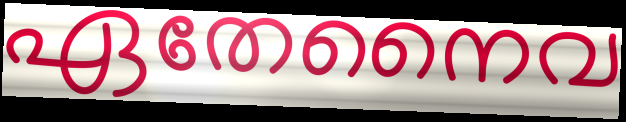
ഏതേനൈവ